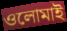
ওলোমাই